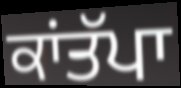
ਕਾਂਤੱਪਾ